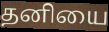
தனியை